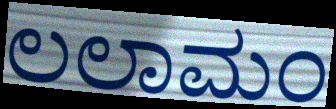
ಲಲಾಮಂ